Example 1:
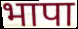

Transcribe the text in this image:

भापा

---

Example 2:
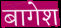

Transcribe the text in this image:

बागेश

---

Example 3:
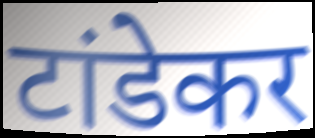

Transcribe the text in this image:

टांडेकर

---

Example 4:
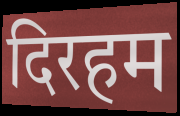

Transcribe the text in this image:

दिरहम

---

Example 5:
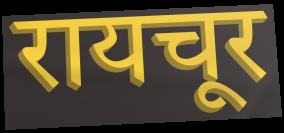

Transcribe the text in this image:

रायचूर